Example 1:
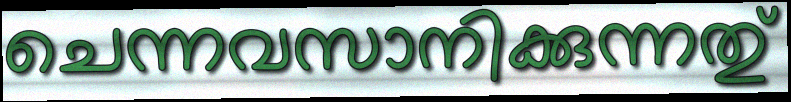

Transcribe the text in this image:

ചെന്നവസാനിക്കുന്നതു്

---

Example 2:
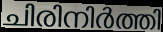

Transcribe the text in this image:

ചിരിനിർത്തി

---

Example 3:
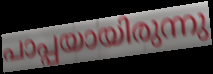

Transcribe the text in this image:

പാപ്പയായിരുന്നു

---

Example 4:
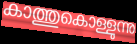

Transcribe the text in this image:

കാത്തുകൊള്ളുന്നു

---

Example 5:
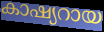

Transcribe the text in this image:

കാഷ്യറായ